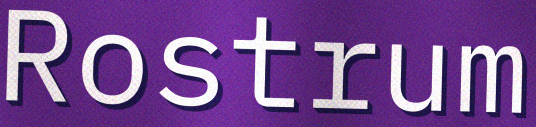
Rostrum